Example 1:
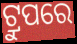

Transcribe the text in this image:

ଟ୍ରୁପରେ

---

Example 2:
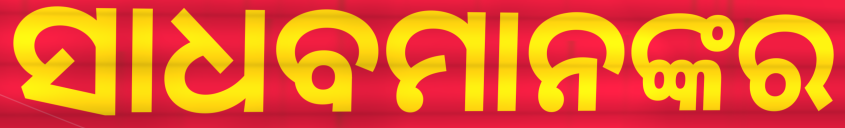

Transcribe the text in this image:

ସାଧବମାନଙ୍କର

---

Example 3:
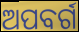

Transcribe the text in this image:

ଅପବର୍ଗ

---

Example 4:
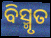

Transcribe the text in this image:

ବିସ୍ମୃତ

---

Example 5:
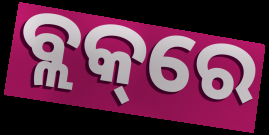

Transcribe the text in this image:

ବ୍ଲକ୍‌ରେ